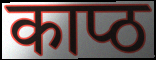
काप्ठ